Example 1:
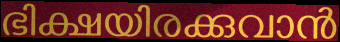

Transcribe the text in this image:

ഭിക്ഷയിരക്കുവാൻ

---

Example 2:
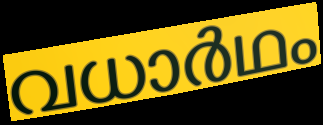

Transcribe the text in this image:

വധാർഥം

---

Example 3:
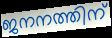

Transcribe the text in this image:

ജനനത്തിന്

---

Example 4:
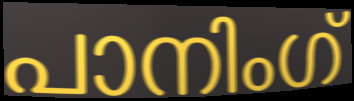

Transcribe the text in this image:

പാനിംഗ്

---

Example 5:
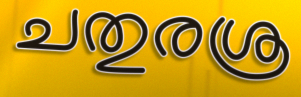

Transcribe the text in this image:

ചതുരശ്ര